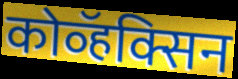
कोव्हॅक्सिन